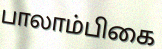
பாலாம்பிகை